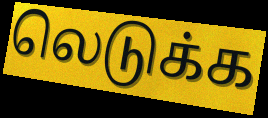
லெடுக்க